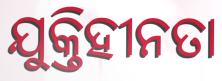
ଯୁକ୍ତିହୀନତା